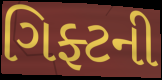
ગિફ્ટની